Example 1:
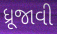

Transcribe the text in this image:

ધ્રૂજાવી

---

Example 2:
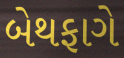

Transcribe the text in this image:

બેથફાગે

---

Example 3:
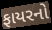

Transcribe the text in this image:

ફાયરનો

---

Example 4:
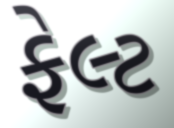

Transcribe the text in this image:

ફેલ્ટ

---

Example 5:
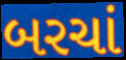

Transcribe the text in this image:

બરચાં